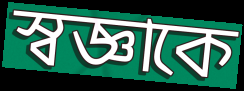
স্বজ্ঞাকে